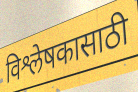
विश्लेषकासाठी